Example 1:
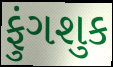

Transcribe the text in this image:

ફુંગશુક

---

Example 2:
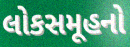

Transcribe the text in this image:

લોકસમૂહનો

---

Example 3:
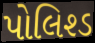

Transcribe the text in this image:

પોલિશ્ડ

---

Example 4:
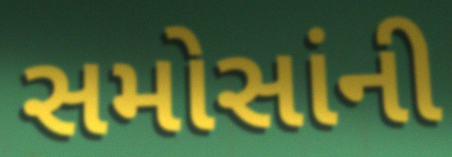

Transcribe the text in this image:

સમોસાંની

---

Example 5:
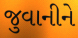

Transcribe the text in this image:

જુવાનીને